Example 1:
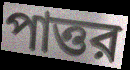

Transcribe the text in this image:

পাত্তর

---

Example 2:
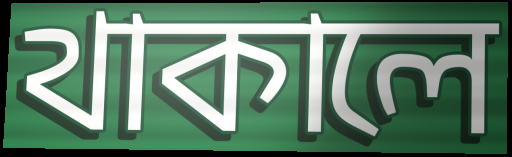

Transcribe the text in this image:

থাকালে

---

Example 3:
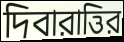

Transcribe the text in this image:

দিবারাত্তির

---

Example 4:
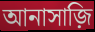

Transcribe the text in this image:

আনাসাজ়ি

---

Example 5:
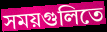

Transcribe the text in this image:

সময়গুলিতে